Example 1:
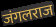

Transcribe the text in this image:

जंगलराज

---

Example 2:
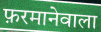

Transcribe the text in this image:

फ़रमानेवाला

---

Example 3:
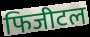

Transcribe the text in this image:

फिजीटल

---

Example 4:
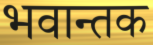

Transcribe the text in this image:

भवान्तक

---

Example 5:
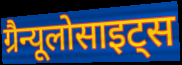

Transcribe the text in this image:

ग्रैन्यूलोसाइट्स